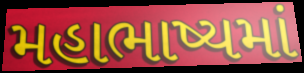
મહાભાષ્યમાં